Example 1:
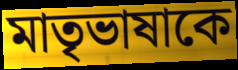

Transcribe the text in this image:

মাতৃভাষাকে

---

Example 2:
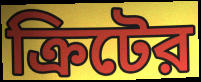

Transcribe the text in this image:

ক্রিটের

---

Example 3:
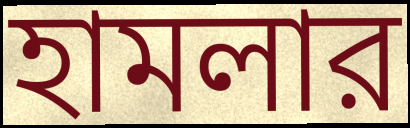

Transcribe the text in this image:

হামলার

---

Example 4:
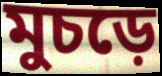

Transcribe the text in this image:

মুচড়ে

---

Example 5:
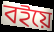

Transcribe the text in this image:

বইয়ে